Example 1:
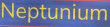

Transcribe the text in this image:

Neptunium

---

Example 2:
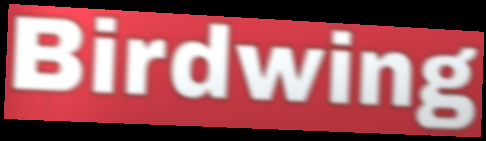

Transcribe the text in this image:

Birdwing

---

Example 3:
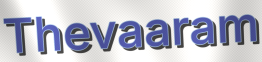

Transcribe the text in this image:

Thevaaram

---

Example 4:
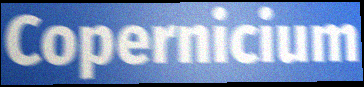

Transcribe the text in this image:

Copernicium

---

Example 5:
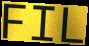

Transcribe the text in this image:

FIL